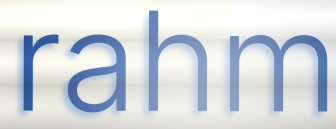
rahm